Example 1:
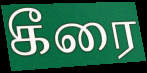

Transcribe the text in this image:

கீரை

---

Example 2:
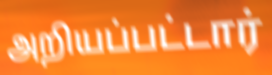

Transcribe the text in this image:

அறியப்பட்டார்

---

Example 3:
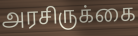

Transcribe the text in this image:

அரசிருக்கை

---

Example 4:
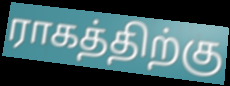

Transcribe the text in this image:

ராகத்திற்கு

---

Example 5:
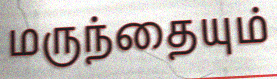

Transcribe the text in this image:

மருந்தையும்